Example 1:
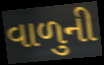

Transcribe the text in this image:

વાળુની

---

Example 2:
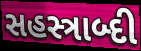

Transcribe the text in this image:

સહસ્ત્રાબ્દી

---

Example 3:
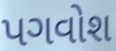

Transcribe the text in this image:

પગવોશ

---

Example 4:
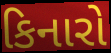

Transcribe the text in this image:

કિનારો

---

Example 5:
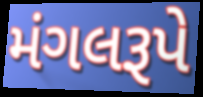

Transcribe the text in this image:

મંગલરૂપે